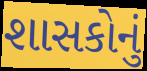
શાસકોનું